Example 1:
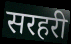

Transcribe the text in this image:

सरहरी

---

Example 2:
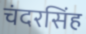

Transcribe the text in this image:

चंदरसिंह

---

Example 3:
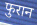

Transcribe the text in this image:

फुरान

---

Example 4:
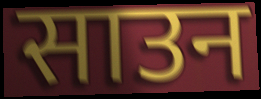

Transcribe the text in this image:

साउन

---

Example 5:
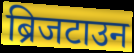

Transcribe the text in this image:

ब्रिजटाउन